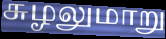
சுழலுமாறு